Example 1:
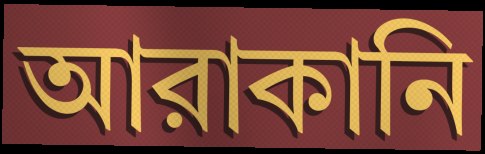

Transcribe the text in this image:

আরাকানি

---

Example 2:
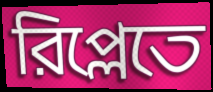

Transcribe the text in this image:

রিপ্লেতে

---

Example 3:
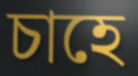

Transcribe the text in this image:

চাহে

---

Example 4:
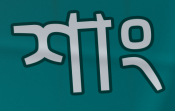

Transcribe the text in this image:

শাং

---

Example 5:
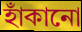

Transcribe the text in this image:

হাঁকানো